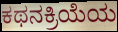
ಕಥನಕ್ರಿಯೆಯ